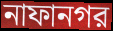
নাফানগর